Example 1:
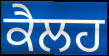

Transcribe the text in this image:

ਕੈਲਹ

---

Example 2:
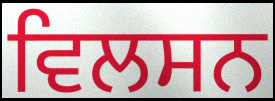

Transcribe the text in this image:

ਵਿਲਸਨ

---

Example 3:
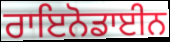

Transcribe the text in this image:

ਰਾਇਨੋਡਾਈਨ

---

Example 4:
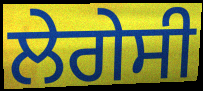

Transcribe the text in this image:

ਲੇਗੇਸੀ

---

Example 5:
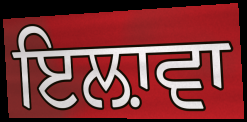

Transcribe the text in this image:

ਇਲ਼ਾਵਾ